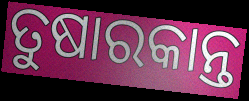
ତୁଷାରକାନ୍ତ